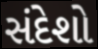
સંદેશો